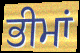
ਭੀਮਾਂ